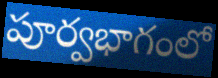
పూర్వభాగంలో